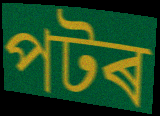
পটৰ